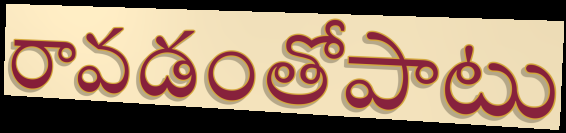
రావడంతోపాటు